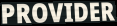
PROVIDER